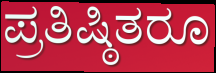
ಪ್ರತಿಷ್ಠಿತರೂ